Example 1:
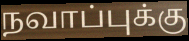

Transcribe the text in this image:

நவாப்புக்கு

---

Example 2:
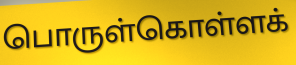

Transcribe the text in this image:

பொருள்கொள்ளக்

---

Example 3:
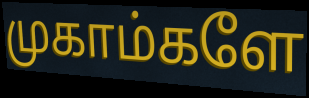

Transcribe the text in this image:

முகாம்களே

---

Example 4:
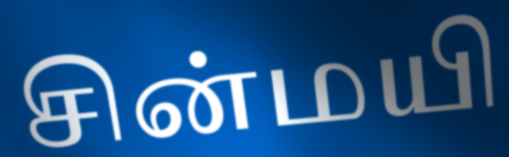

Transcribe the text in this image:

சின்மயி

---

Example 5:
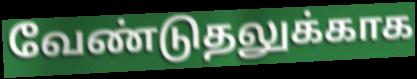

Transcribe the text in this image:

வேண்டுதலுக்காக